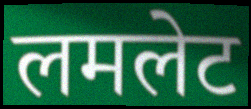
लमलेट